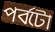
পৰ্বটো